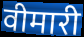
वीमारी